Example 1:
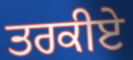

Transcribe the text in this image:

ਤਰਕੀਏ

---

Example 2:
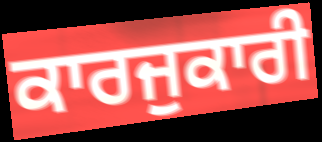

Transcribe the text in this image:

ਕਾਰਜੁਕਾਰੀ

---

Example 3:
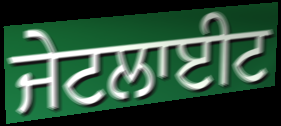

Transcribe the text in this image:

ਜੇਟਲਾਈਟ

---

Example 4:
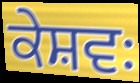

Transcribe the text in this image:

ਕੇਸ਼ਵਃ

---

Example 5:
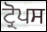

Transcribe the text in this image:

ਟ੍ਰੋਪਸ